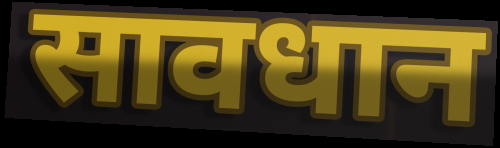
सावधान